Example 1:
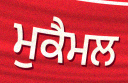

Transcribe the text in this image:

ਮੁਕੈਮਲ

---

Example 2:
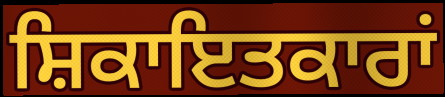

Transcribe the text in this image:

ਸ਼ਿਕਾਇਤਕਾਰਾਂ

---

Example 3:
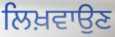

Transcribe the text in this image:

ਲਿਖ਼ਵਾਉਣ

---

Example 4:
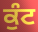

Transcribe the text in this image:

ਕੁੰਟ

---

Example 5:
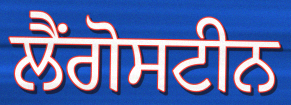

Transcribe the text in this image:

ਲੈਂਗੋਸਟੀਨ